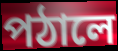
পঠালে